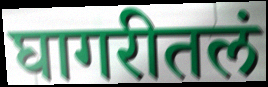
घागरीतलं